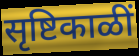
सृष्टिकाळीं